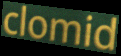
clomid